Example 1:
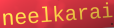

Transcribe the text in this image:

neelkarai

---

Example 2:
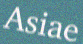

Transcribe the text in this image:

Asiae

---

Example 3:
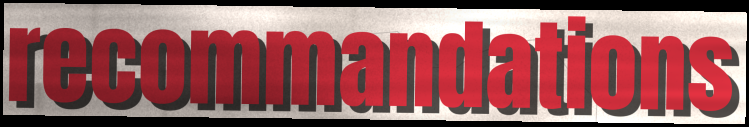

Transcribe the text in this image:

recommandations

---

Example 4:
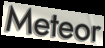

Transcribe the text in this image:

Meteor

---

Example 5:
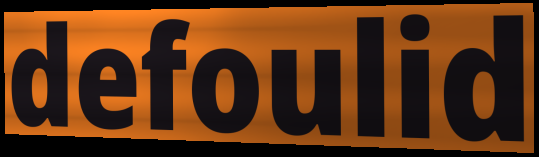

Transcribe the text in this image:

defoulid